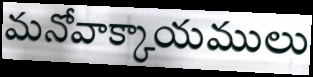
మనోవాక్కాయములు